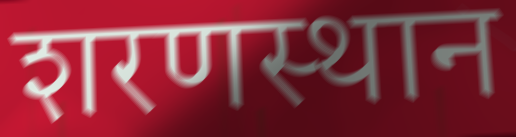
शरणस्थान